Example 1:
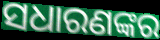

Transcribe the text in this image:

ସଧାରଣଙ୍କର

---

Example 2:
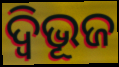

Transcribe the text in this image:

ଦ୍ବିଭୂଜ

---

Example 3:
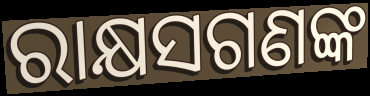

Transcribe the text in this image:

ରାକ୍ଷସଗଣଙ୍କ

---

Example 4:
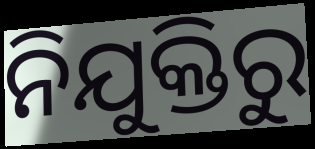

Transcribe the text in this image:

ନିଯୁକ୍ତିରୁ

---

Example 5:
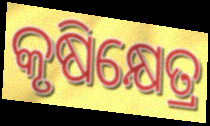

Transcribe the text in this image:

କୃଷିକ୍ଷେତ୍ର